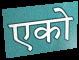
एको